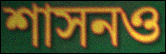
শাসনও